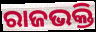
ରାଜଭକ୍ତି